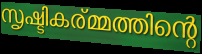
സൃഷ്ടികര്മ്മത്തിന്റെ